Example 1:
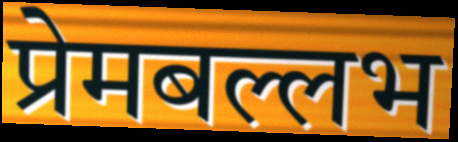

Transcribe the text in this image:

प्रेमबल्लभ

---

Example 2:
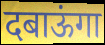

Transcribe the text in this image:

दबाऊंगा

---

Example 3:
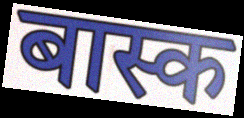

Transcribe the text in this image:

बास्क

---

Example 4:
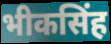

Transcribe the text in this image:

भीकसिंह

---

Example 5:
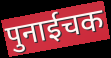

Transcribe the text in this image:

पुनाईचक